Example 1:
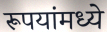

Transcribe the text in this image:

रूपयांमध्ये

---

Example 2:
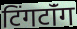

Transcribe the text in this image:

टिंगटॉंग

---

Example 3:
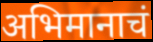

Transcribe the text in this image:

अभिमानाचं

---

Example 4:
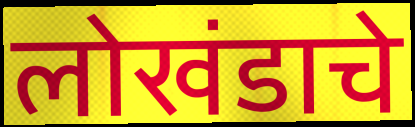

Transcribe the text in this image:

लोखंडाचे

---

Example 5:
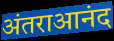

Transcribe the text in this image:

अंतराआनंद